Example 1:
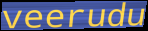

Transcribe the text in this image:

veerudu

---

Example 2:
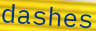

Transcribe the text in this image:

dashes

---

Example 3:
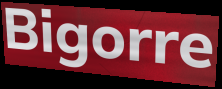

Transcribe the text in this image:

Bigorre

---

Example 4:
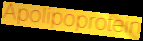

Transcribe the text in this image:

Apolipoprotein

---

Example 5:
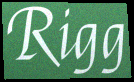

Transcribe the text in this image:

Rigg